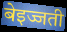
बेइज्जती